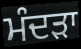
ਮੰਦੜਾ